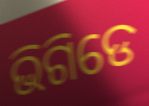
ଭିଗିଡେ